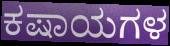
ಕಷಾಯಗಳ